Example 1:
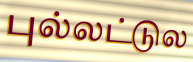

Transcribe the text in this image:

புல்லட்டுல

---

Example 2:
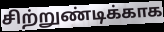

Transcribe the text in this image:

சிற்றுண்டிக்காக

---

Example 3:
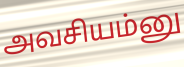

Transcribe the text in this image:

அவசியம்னு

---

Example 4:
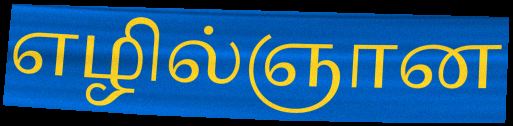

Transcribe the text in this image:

எழில்ஞான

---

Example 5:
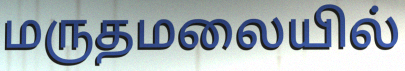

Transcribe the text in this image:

மருதமலையில்